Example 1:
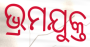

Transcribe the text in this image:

ଭ୍ରମଯୁକ୍ତ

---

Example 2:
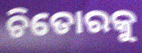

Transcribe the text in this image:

ଚିତୋରକୁ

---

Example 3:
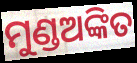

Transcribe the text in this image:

ମୁଣ୍ଡଅଙ୍କିତ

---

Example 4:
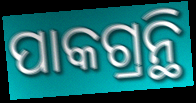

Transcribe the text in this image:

ପାକଗ୍ରନ୍ଥି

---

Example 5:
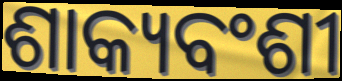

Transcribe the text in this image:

ଶାକ୍ୟବଂଶୀ